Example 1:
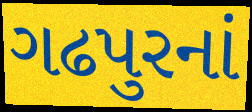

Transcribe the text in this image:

ગઢપુરનાં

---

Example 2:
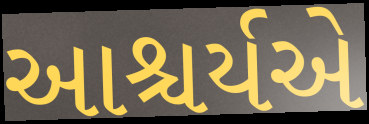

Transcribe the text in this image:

આશ્ચર્યએ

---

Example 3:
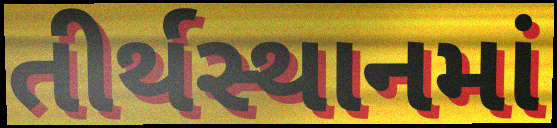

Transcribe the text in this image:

તીર્થસ્થાનમાં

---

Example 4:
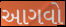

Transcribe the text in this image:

આગવો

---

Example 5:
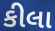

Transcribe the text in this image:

કીલા